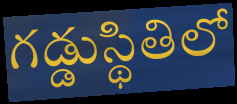
గడ్డుస్థితిలో